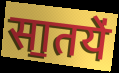
सा॒तये॑